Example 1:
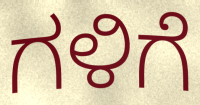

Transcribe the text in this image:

ಗಳಿಗೆ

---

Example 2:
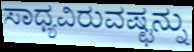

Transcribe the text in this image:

ಸಾಧ್ಯವಿರುವಷ್ಟನ್ನು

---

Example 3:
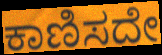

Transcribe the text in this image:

ಕಾಣಿಸದೇ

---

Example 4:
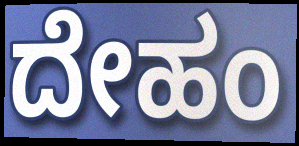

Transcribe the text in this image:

ದೇಹಂ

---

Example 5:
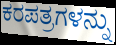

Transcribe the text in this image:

ಕರಪತ್ರಗಳನ್ನು